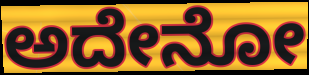
ಅದೇನೋ